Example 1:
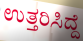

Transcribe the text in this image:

ಉತ್ತರಿಸಿದ್ದೆ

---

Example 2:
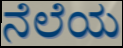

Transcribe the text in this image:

ನೆಲೆಯ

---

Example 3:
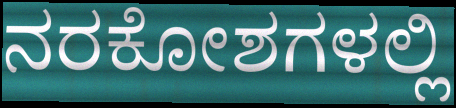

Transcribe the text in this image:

ನರಕೋಶಗಳಲ್ಲಿ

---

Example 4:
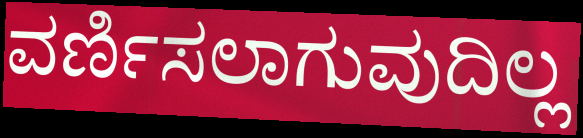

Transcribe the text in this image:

ವರ್ಣಿಸಲಾಗುವುದಿಲ್ಲ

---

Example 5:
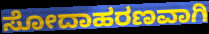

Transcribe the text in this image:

ಸೋದಾಹರಣವಾಗಿ